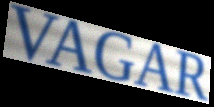
VAGAR